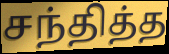
சந்தித்த